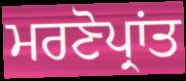
ਮਰਣੋਪ੍ਰਾਂਤ